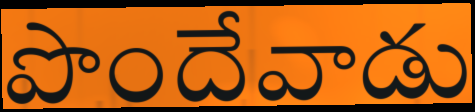
పొందేవాడు